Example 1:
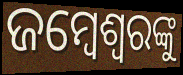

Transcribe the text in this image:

ଜମ୍ବେଶ୍ୱରଙ୍କୁ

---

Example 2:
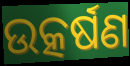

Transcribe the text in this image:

ଉତ୍କର୍ଷଣ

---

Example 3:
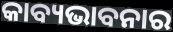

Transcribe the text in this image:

କାବ୍ୟଭାବନାର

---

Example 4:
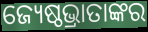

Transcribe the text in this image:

ଜ୍ୟେଷ୍ଠଭ୍ରାତାଙ୍କର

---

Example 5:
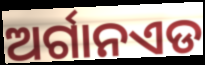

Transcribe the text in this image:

ଅର୍ଗାନଏଡ